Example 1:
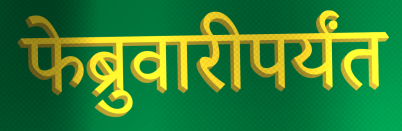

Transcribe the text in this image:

फेब्रुवारीपर्यंत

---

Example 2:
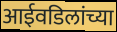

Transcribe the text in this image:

आईवडिलांच्या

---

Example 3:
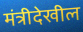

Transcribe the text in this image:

मंत्रीदेखील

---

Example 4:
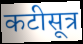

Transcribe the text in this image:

कटीसूत्र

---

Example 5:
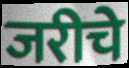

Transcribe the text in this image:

जरीचे